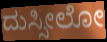
ದುಸ್ಸೀಲೋ